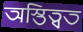
অস্তিত্বত